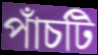
পাঁচটি